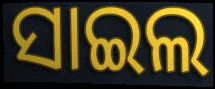
ସାଇଲ